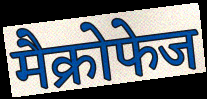
मैक्रोफेज